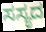
ಸಸ್ಯದ